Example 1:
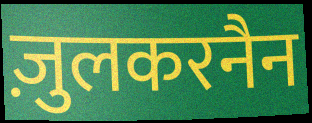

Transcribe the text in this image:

ज़ुलकरनैन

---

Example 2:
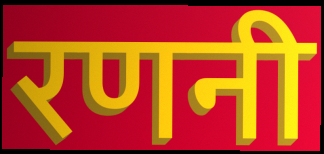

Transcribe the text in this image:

रणनी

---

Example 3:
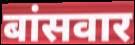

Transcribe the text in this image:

बांसवार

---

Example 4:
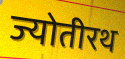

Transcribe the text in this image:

ज्योतीरथ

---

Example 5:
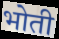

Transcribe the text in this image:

भोती